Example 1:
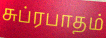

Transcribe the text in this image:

சுப்ரபாதம்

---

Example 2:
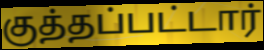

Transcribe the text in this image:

குத்தப்பட்டார்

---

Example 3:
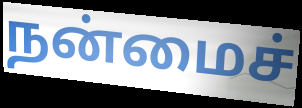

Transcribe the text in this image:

நன்மைச்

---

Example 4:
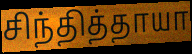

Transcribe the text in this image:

சிந்தித்தாயா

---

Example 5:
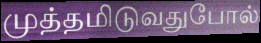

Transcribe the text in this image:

முத்தமிடுவதுபோல்